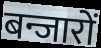
बन्जारों